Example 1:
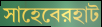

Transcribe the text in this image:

সাহেবেরহাট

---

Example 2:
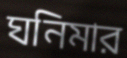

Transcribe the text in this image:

ঘনিমার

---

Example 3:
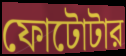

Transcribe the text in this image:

ফোটোটার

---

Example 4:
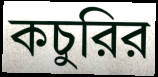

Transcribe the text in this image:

কচুরির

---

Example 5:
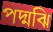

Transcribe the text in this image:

পদ্মঝি